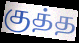
குத்த